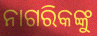
ନାଗରିକଙ୍କୁ